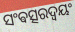
ସଂଵତ୍ସରଦ୍ଵୟଂ